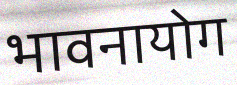
भावनायोग